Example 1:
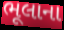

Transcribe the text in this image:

ભૂલાના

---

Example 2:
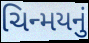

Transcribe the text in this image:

ચિન્મયનું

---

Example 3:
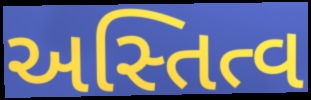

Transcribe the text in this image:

અસ્તિત્વ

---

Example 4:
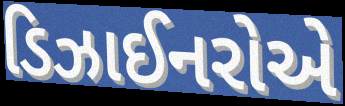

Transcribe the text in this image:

ડિઝાઈનરોએ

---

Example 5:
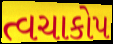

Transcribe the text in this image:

ત્વચાકોપ